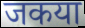
जकया